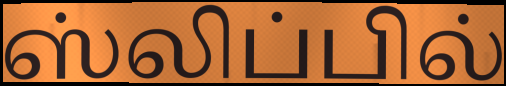
ஸ்லிப்பில்